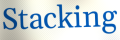
Stacking